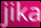
jika